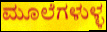
ಮೂಲೆಗಳುಳ್ಳ